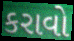
કરાવો